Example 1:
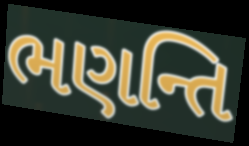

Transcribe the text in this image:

ભણન્તિ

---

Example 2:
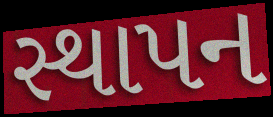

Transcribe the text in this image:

સ્થાપન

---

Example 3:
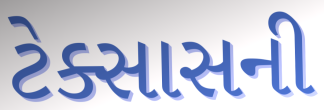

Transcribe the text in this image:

ટેક્સાસની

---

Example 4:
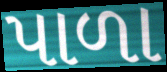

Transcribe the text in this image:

પાળા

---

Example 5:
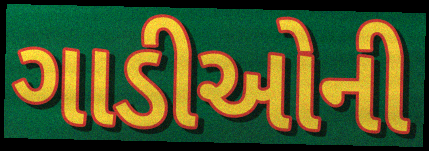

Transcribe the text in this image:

ગાડીઓની